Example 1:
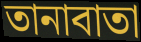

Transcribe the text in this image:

তানাবাতা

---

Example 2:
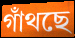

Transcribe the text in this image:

গাঁথছে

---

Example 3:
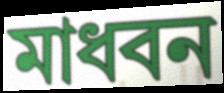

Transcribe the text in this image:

মাধবন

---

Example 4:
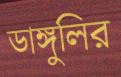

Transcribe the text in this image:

ডাঙ্গুলির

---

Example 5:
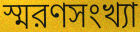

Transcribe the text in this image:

স্মরণসংখ্যা